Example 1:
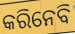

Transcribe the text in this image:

କରିନେବି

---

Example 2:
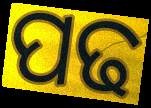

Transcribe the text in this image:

ପଢ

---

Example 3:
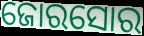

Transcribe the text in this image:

ଜୋରସୋର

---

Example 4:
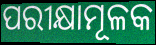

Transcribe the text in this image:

ପରୀକ୍ଷାମୂଳକ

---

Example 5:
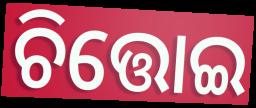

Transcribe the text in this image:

ଚିତ୍ତୋଇ